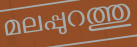
മലപ്പുറത്തു